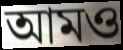
আমও